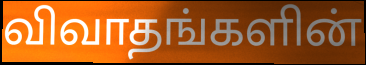
விவாதங்களின்